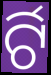
ର୍ଟି